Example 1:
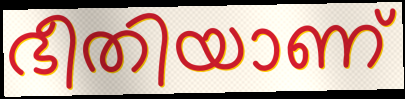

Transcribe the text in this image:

ഭീതിയാണ്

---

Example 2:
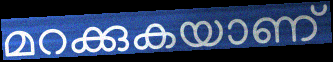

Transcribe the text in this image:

മറക്കുകയാണ്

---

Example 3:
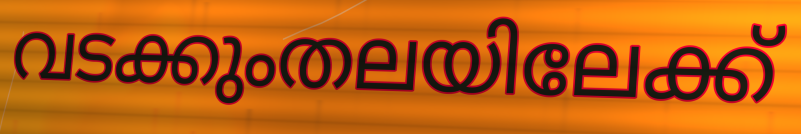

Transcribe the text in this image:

വടക്കുംതലയിലേക്ക്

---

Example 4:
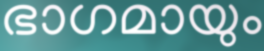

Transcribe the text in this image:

ഭാഗമായും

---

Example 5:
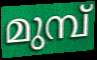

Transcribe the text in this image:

മുമ്പ്